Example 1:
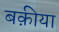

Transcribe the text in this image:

बक़ीया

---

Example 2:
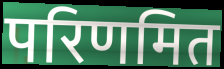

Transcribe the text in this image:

परिणमित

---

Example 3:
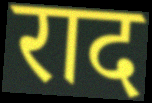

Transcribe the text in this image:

राद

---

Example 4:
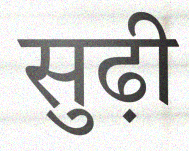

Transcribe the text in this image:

सुढ़ी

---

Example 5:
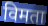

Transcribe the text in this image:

विमता